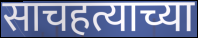
साचहत्याच्या